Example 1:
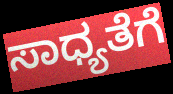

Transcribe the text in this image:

ಸಾಧ್ಯತೆಗೆ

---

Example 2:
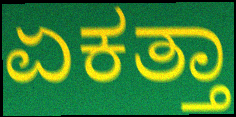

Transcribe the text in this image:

ಏಕತ್ತಾ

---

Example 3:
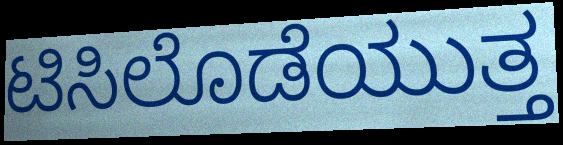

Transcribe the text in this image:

ಟಿಸಿಲೊಡೆಯುತ್ತ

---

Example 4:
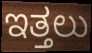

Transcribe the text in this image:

ಇತ್ತಲು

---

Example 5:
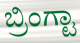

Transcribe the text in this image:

ಬ್ರಿಂಗ್ಟಾ